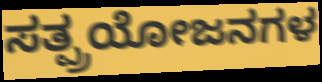
ಸತ್ಪ್ರಯೋಜನಗಳ